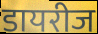
डायरीज